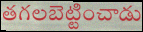
తగలబెట్టించాడు